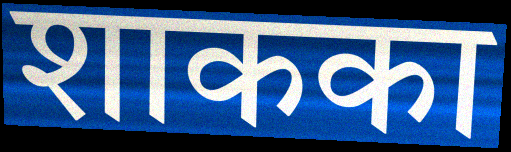
शाकका